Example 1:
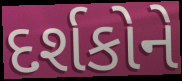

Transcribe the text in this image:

દર્શકોને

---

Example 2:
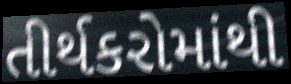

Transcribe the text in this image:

તીર્થકરોમાંથી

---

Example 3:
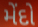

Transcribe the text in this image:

મેંદો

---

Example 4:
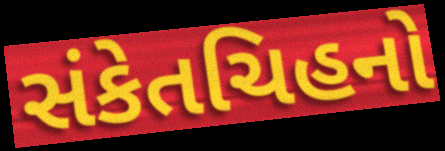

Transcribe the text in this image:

સંકેતચિહનો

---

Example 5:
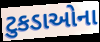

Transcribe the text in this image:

ટુકડાઓના